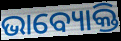
ଭାବ୍ୟୋକ୍ତି